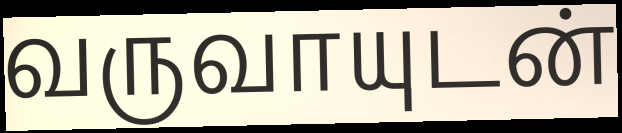
வருவாயுடன்